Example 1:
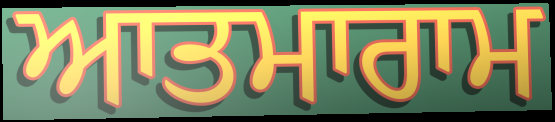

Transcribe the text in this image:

ਆਤਮਾਰਾਮ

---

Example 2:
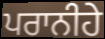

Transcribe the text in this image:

ਪਰਾਨੀਹੇ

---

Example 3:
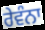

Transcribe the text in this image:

ਰੇਵੰਨਾ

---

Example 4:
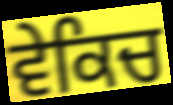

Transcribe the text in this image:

ਵੇਕਿਚ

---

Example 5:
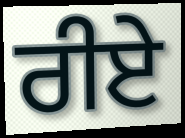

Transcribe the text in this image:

ਰੀਏ